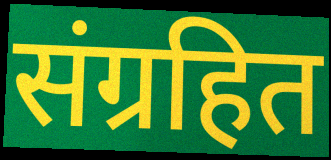
संग्रहित